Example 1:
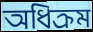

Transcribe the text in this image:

অধিক্রম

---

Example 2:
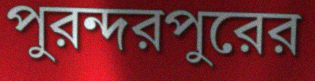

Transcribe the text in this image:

পুরন্দরপুরের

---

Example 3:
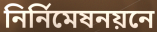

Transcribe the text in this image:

নির্নিমেষনয়নে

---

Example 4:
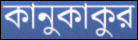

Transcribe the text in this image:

কানুকাকুর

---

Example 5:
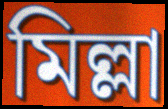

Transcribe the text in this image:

মিল্লা